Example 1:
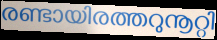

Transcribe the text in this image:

രണ്ടായിരത്തറുനൂറ്റി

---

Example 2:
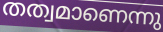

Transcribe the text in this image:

തത്വമാണെന്നു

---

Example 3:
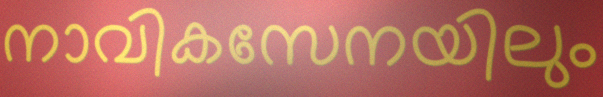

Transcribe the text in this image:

നാവികസേനയിലും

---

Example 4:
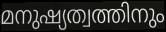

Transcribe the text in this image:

മനുഷ്യത്വത്തിനും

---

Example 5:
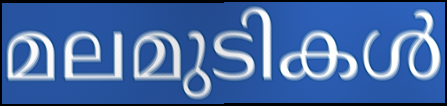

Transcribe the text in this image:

മലമുടികൾ